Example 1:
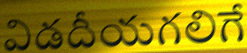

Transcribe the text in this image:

విడదీయగలిగే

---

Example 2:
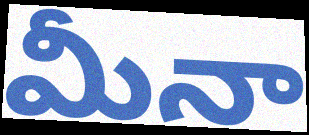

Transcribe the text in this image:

మీనా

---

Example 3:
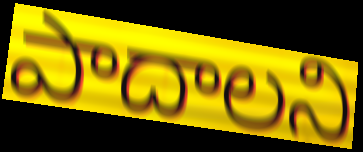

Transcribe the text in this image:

పాదాలని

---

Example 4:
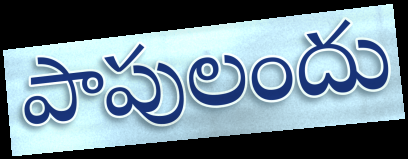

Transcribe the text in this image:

పాపులందు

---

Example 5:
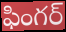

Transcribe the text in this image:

ఫింగర్